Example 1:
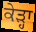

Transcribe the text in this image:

ਕੇੜ੍ਹਾ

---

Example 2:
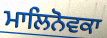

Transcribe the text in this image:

ਮਾਲਿਨੋਵਕਾ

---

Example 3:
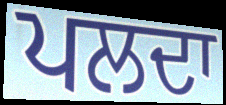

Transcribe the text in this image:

ਪਲਦਾ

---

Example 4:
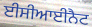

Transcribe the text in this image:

ਈਸੀਆਈਨੈਟ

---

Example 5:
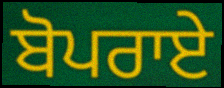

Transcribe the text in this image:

ਬੋਪਰਾਏ